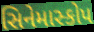
સિનેમાસ્કોપ